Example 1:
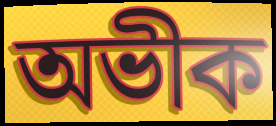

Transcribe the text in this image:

অভীক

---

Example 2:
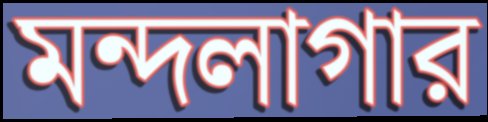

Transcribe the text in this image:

মন্দলাগার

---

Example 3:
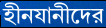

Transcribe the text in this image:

হীনযানীদের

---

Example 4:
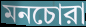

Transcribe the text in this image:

মনচোরা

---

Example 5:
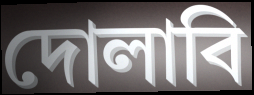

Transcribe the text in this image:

দোলাবি